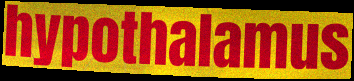
hypothalamus